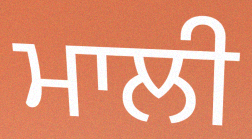
ਮਾਲੀ